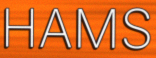
HAMS